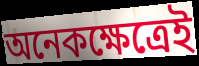
অনেকক্ষেত্রেই